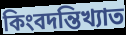
কিংবদন্তিখ্যাত